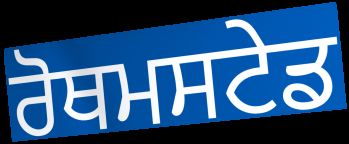
ਰੋਥਮਸਟੇਡ